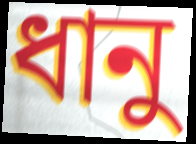
ধানু